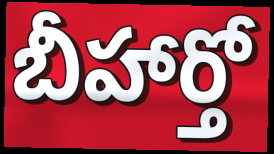
బీహార్తో